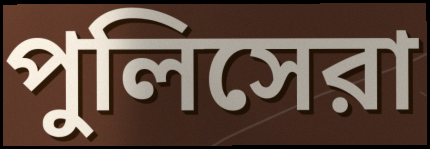
পুলিসেরা